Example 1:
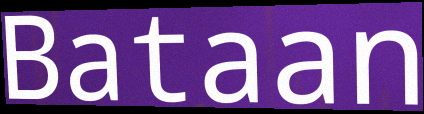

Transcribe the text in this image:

Bataan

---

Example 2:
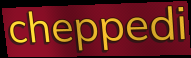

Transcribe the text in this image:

cheppedi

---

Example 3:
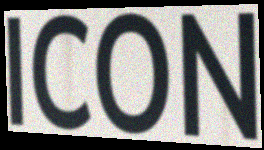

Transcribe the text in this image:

ICON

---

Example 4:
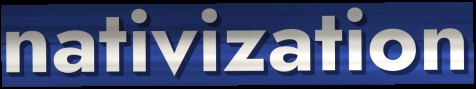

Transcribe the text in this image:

nativization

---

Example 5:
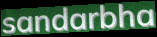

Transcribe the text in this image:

sandarbha